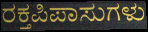
ರಕ್ತಪಿಪಾಸುಗಳು